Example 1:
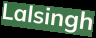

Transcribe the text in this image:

Lalsingh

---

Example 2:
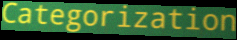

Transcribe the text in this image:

Categorization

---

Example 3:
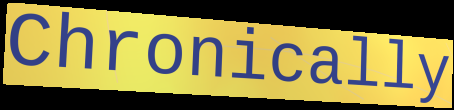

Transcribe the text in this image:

Chronically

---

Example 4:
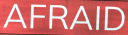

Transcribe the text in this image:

AFRAID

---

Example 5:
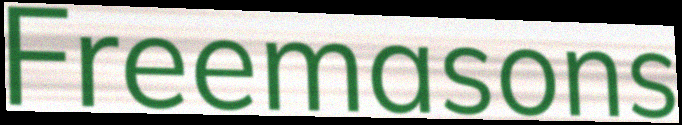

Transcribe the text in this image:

Freemasons